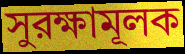
সুরক্ষামূলক